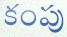
కంపు